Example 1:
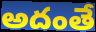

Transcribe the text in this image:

అదంతే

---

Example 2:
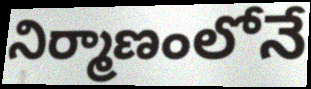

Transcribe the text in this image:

నిర్మాణంలోనే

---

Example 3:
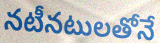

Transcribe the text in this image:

నటీనటులతోనే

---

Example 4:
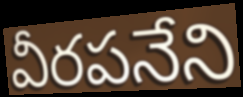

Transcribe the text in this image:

వీరపనేని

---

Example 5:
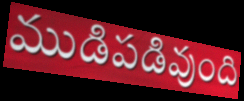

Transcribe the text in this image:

ముడిపడివుంది